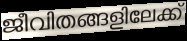
ജീവിതങ്ങളിലേക്ക്